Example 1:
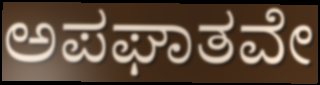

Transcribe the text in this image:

ಅಪಘಾತವೇ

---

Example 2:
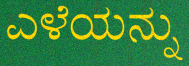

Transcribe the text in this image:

ಎಳೆಯನ್ನು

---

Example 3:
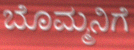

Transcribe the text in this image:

ಬೊಮ್ಮನಿಗೆ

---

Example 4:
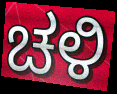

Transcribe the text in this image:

ಚಳಿ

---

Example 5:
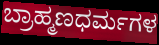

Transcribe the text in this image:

ಬ್ರಾಹ್ಮಣಧರ್ಮಗಳ